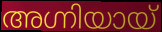
അഗ്നിയായ്